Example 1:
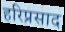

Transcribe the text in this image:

हरिप्रसाद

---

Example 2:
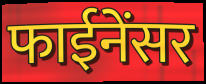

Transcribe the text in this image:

फाईनेंसर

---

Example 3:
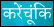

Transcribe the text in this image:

करेंचूंकि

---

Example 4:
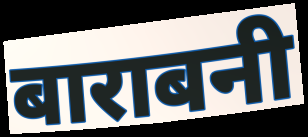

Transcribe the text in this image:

बाराबनी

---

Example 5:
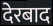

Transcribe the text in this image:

देरबाद